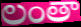
లంతా